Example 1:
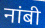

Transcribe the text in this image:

नांबी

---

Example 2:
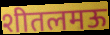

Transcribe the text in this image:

शीतलमऊ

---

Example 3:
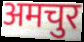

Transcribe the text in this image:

अमचुर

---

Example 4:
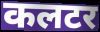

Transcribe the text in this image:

कलटर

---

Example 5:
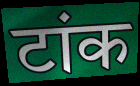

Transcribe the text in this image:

टांक